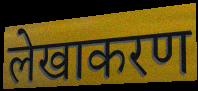
लेखाकरण